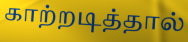
காற்றடித்தால்